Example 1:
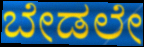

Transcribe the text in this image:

ಬೇಡಲೇ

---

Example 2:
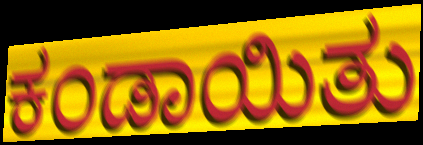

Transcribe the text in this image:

ಕಂಡಾಯಿತು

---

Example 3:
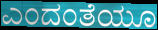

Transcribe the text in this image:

ಎಂದಂತೆಯೂ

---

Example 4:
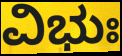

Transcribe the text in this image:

ವಿಭುಃ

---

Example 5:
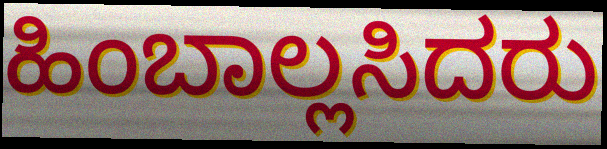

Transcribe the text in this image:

ಹಿಂಬಾಲ್ಲಸಿದರು